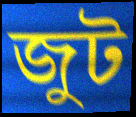
জুট